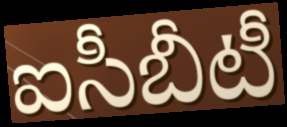
ఐసీబీటీ